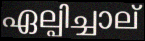
ഏല്പിച്ചാല്